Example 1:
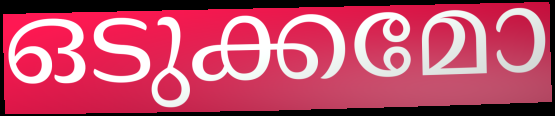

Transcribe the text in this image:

ഒടുക്കമോ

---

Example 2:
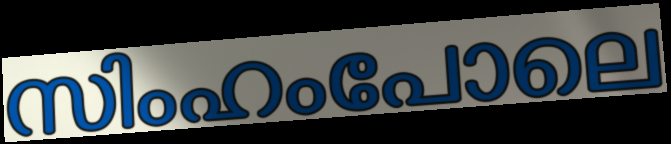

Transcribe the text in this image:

സിംഹംപോലെ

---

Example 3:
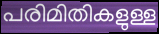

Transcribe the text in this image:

പരിമിതികളുള്ള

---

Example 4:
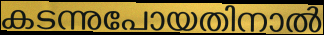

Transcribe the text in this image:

കടന്നുപോയതിനാൽ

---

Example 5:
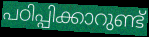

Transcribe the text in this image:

പഠിപ്പിക്കാറുണ്ട്